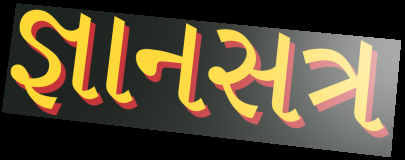
જ્ઞાનસત્ર